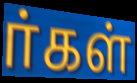
ர்கள்